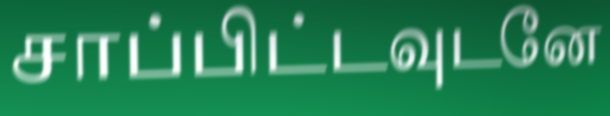
சாப்பிட்டவுடனே